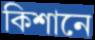
কিশানে